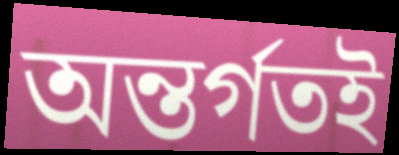
অন্তর্গতই